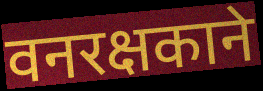
वनरक्षकाने